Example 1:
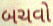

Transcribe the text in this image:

બચવો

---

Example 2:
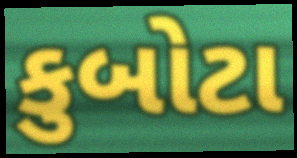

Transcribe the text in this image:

કુબોટા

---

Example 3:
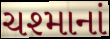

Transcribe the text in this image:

ચશ્માનાં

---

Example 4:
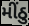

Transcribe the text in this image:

મીંઠુ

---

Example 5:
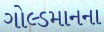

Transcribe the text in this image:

ગોલ્ડમાનના